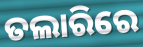
ତଲାରିରେ